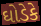
ઘોડેકે